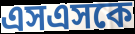
এসএসকে